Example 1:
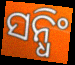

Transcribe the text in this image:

ସନ୍ଧିଂ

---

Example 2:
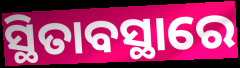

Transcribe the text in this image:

ସ୍ଥିତାବସ୍ଥାରେ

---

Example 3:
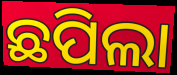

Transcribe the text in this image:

ଛପିଲା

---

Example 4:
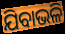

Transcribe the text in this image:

ଯିବାଭଳି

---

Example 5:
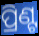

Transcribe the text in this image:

ପ୍ରିଣ୍ଟ